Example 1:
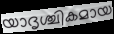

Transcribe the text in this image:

യാദൃശ്ചികമായ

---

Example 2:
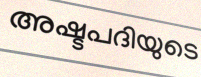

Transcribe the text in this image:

അഷ്ടപദിയുടെ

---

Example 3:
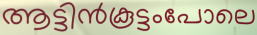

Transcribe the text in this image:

ആട്ടിൻകൂട്ടംപോലെ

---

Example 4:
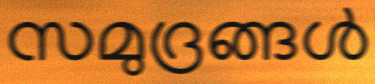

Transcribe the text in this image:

സമുദ്രങ്ങൾ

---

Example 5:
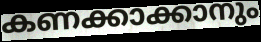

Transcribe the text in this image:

കണക്കാക്കാനും